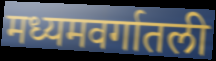
मध्यमवर्गातली